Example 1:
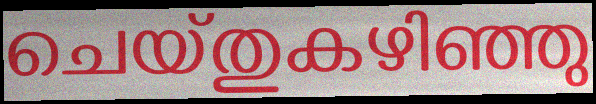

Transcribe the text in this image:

ചെയ്തുകഴിഞ്ഞു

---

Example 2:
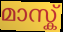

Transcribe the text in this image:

മാസ്ക്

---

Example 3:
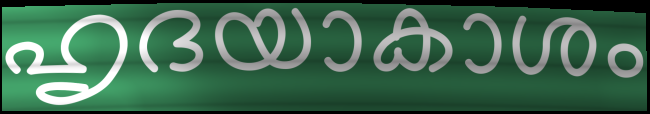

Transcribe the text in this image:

ഹൃദയാകാശം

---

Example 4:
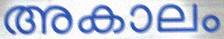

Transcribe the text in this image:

അകാലം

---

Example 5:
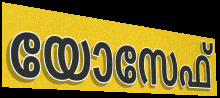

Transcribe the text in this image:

യോസേഫ്